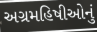
અગ્રમહિષીઓનું